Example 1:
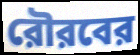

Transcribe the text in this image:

রৌরবের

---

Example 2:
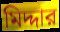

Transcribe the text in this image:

মিদ্দার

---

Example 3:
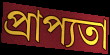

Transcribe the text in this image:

প্রাপ্যতা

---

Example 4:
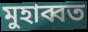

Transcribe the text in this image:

মুহাব্বত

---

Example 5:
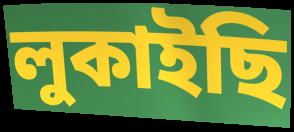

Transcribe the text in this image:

লুকাইছি